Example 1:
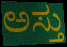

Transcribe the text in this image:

ಅಸ್ತು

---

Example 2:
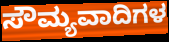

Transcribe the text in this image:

ಸೌಮ್ಯವಾದಿಗಳ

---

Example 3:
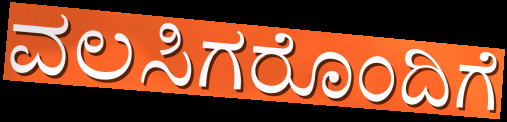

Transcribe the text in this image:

ವಲಸಿಗರೊಂದಿಗೆ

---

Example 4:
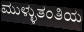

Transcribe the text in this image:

ಮುಳ್ಳುತಂತಿಯ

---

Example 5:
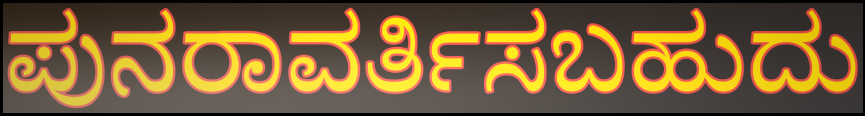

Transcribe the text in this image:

ಪುನರಾವರ್ತಿಸಬಹುದು